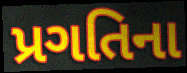
પ્રગતિના